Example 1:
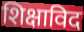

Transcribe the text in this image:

शिक्षाविद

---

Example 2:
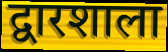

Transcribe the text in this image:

द्वारशाला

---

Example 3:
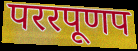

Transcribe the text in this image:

पररपूणप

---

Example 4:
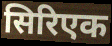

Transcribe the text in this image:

सिरिएक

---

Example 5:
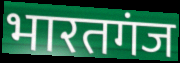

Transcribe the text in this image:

भारतगंज